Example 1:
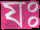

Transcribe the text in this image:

যঃ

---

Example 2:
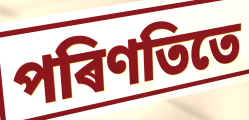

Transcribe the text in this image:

পৰিণতিতে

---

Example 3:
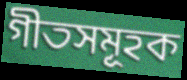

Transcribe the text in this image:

গীতসমূহক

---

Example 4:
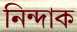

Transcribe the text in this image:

নিন্দাক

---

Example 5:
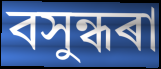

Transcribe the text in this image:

বসুন্ধৰা